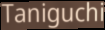
Taniguchi